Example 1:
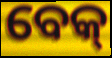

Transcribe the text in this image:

ବେକ୍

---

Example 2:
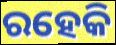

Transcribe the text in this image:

ରହେକି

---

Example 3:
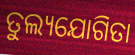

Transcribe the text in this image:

ତୁଲ୍ୟଯୋଗିତା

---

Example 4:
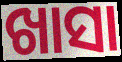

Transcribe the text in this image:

ଖାସା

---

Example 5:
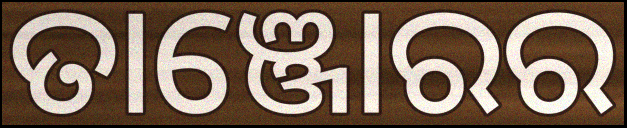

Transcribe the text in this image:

ତାଞ୍ଜୋରର